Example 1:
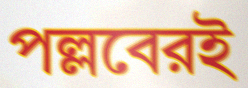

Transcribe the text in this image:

পল্লবেরই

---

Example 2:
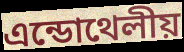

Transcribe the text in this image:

এন্ডোথেলীয়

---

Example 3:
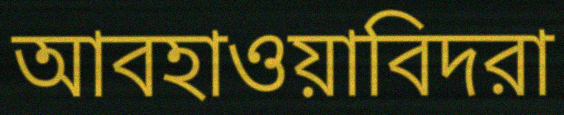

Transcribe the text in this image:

আবহাওয়াবিদরা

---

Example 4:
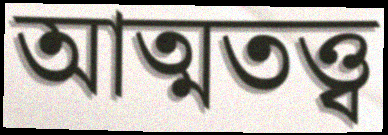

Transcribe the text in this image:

আত্মতত্ত্ব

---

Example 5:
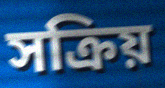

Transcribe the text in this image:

সক্রিয়